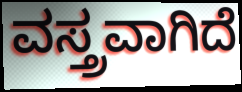
ವಸ್ತ್ರವಾಗಿದೆ